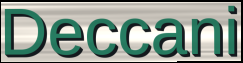
Deccani